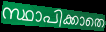
സ്ഥാപിക്കാതെ